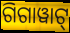
ଗିଗାୱାଟ୍